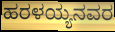
ಹರಳಯ್ಯನವರ